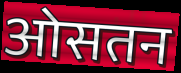
ओसतन